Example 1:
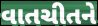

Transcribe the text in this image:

વાતચીતને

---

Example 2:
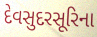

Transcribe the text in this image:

દેવસુદરસૂરિના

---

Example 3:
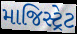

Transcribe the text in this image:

માજિસ્ટ્રેટ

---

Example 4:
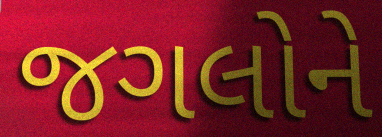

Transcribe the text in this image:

જગલોને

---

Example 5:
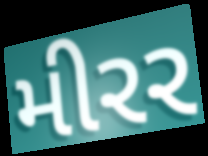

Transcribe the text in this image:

મીરર